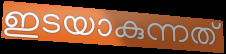
ഇടയാകുന്നത്